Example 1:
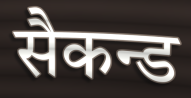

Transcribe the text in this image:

सैकन्ड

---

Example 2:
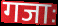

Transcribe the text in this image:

गजाः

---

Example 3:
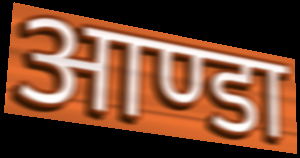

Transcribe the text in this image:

आण्डा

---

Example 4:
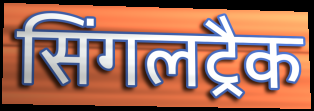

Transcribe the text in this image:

सिंगलट्रैक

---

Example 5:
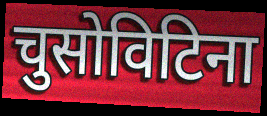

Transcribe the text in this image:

चुसोविटिना